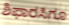
ಶಿಫಾರಸಿಗೂ